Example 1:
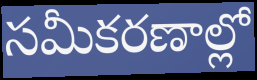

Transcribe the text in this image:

సమీకరణాల్లో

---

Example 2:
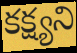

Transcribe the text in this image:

కక్ష్యని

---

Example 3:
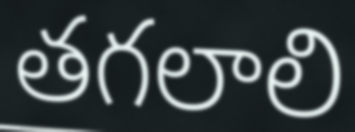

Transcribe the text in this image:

తగలాలి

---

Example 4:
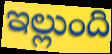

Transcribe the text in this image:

ఇల్లుంది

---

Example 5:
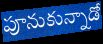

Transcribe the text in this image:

పూనుకున్నాడో